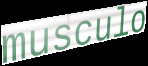
musculo